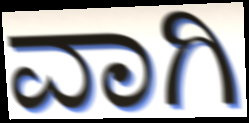
ವಾಗಿ